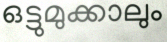
ഒട്ടുമുക്കാലും